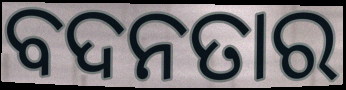
ବଦନତାର